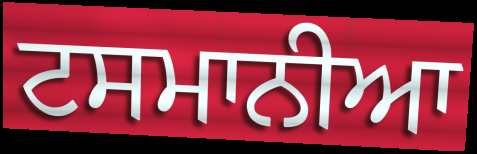
ਟਸਮਾਨੀਆ